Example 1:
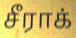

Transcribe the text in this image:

சீராக்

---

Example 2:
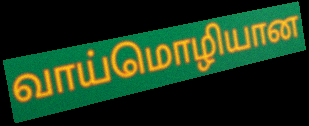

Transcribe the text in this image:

வாய்மொழியான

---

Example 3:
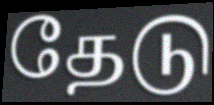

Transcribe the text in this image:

தேடு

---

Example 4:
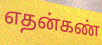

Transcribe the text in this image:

எதன்கண்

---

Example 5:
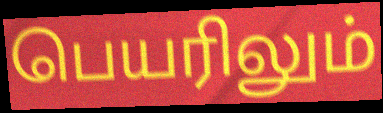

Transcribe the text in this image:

பெயரிலும்